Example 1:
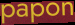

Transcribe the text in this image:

papon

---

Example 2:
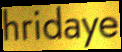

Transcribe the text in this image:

hridaye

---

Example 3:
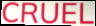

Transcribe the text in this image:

CRUEL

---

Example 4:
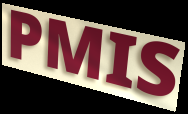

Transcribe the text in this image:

PMIS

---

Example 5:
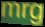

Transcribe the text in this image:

mrg